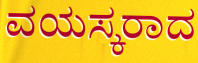
ವಯಸ್ಕರಾದ